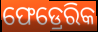
ଫେଡ୍ରେରିକ